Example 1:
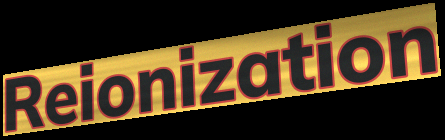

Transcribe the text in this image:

Reionization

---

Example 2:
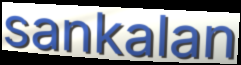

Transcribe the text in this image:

sankalan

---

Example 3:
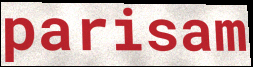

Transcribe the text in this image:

parisam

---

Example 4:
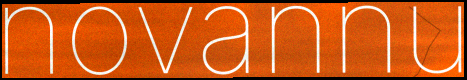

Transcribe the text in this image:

novannu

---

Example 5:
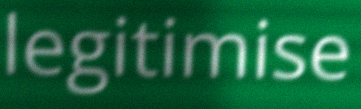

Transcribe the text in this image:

legitimise